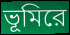
ভূমিরে